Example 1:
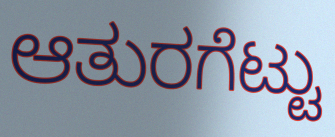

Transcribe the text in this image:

ಆತುರಗೆಟ್ಟು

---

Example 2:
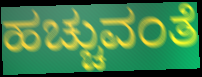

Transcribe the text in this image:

ಹಚ್ಚುವಂತೆ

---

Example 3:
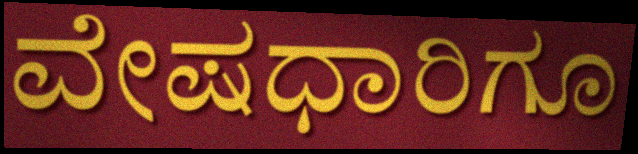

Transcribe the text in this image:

ವೇಷಧಾರಿಗೂ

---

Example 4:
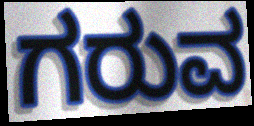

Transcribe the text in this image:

ಗರುವ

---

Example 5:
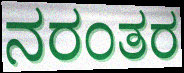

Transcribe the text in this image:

ನರಂತರ